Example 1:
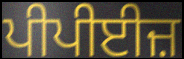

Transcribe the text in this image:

ਪੀਪੀਈਜ਼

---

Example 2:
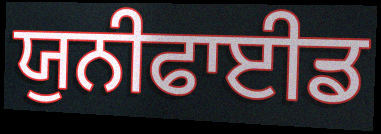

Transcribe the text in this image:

ਯੁਨੀਫਾਈਡ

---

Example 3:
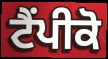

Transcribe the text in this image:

ਟੈਂਪੀਕੋ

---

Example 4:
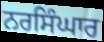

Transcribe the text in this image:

ਨਰਸਿੰਘਾਰ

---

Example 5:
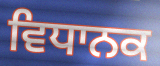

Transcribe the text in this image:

ਵਿਧਾਨਕ